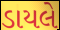
ડાયલે